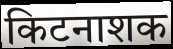
किटनाशक